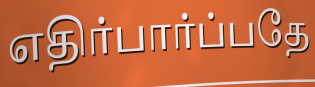
எதிர்பார்ப்பதே